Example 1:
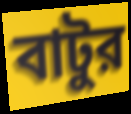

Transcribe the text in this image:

বাটুর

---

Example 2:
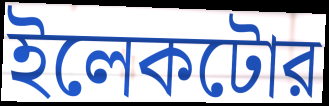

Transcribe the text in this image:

ইলেকটোর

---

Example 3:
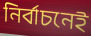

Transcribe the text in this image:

নির্বাচনেই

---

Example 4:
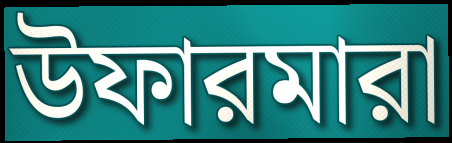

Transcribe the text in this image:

উফারমারা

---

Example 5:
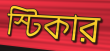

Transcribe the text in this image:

স্টিকার